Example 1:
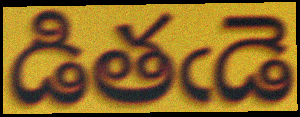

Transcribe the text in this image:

డితఁడె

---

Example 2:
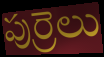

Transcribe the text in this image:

పుర్రెలు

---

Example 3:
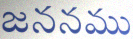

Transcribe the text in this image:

జననము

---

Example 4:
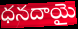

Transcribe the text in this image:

ధనదాయై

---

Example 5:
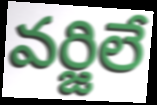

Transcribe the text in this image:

వర్జిలే